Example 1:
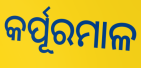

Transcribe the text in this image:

କର୍ପୂରମାଳ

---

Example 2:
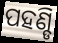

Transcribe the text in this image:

ପହଣ୍ଡି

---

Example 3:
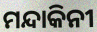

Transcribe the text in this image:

ମନ୍ଦାକିନୀ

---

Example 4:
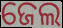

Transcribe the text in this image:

ଜେଲ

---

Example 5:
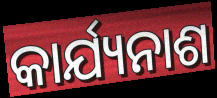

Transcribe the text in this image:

କାର୍ଯ୍ୟନାଶ